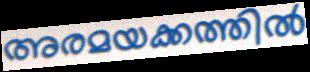
അരമയക്കത്തിൽ